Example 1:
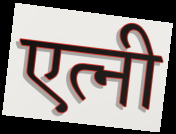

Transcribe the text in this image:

एत्नी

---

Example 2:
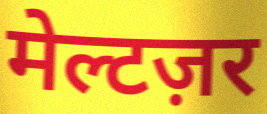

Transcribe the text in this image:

मेल्टज़र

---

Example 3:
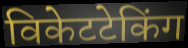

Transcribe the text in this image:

विकेटटेकिंग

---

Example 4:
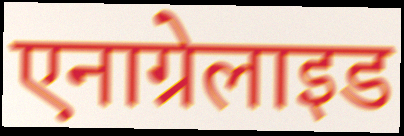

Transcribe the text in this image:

एनाग्रेलाइड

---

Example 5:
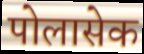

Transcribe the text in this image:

पोलासेक